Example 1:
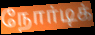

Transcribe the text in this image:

நோர்டிக்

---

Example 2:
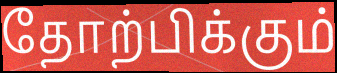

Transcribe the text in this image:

தோற்பிக்கும்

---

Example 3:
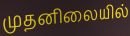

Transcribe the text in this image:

முதனிலையில்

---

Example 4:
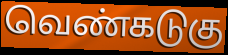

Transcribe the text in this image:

வெண்கடுகு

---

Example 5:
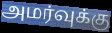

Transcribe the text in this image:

அமர்வுக்கு